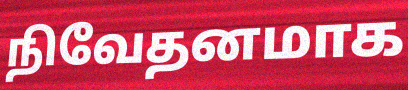
நிவேதனமாக